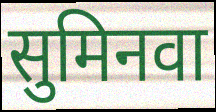
सुमिनवा